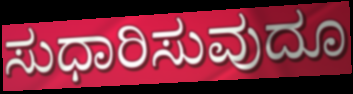
ಸುಧಾರಿಸುವುದೂ